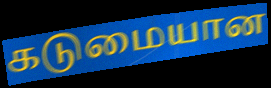
கடுமையான